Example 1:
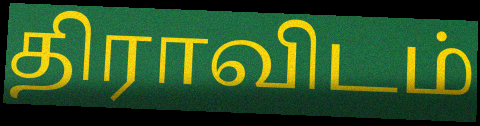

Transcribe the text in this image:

திராவிடம்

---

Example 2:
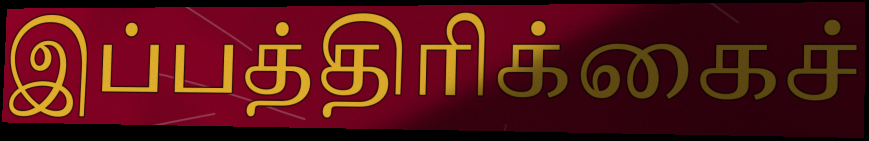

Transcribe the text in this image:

இப்பத்திரிக்கைச்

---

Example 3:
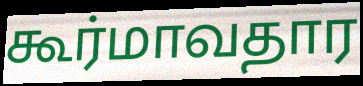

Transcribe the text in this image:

கூர்மாவதார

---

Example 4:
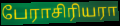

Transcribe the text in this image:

பேராசிரியரா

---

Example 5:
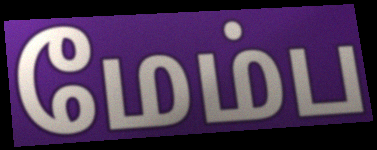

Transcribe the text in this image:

மேம்ப